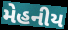
મેહનીય